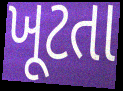
ખૂટતા